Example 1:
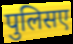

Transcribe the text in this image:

पुलिसए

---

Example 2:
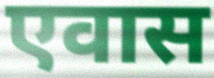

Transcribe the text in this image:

एवास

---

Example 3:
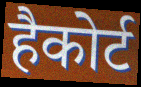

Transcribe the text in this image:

हैकोर्ट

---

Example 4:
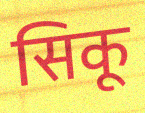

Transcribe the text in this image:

सिकू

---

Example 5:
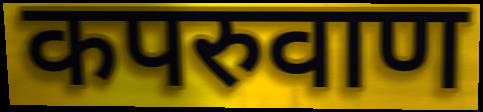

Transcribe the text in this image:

कपरुवाण